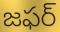
జఫర్